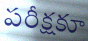
పరీక్షకూ